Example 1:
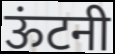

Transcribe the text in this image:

ऊंटनी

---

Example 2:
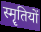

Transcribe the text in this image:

स्मॄतियों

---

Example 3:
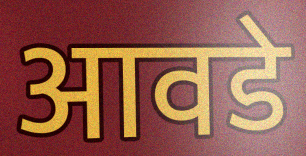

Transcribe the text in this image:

आवडे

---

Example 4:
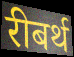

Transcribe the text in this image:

रीबर्थ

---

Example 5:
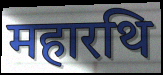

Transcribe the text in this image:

महारथि